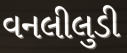
વનલીલુડી